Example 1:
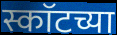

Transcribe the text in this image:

स्कॉटच्या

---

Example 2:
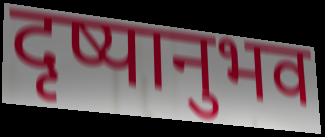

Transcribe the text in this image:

दृष्यानुभव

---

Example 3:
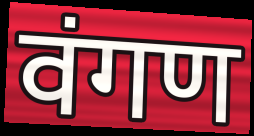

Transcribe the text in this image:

वंगण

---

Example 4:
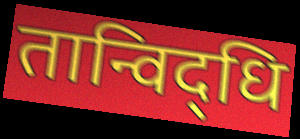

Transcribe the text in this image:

तान्विद्धि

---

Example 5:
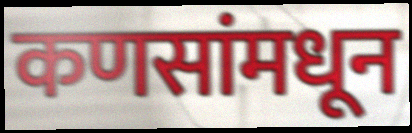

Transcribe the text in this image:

कणसांमधून